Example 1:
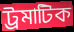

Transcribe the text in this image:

ট্রমাটিক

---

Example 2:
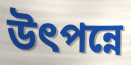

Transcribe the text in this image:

উৎপন্নে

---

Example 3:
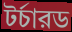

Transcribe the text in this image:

টর্চারড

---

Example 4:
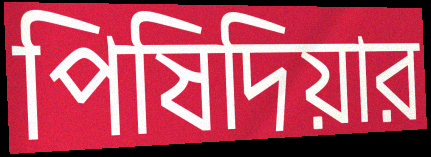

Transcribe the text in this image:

পিষিদিয়ার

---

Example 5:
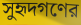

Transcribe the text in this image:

সুহৃদগণের